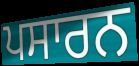
ਪਸਾਰਨ